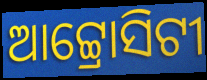
ଆଟ୍ଟ୍ରୋସିଟୀ